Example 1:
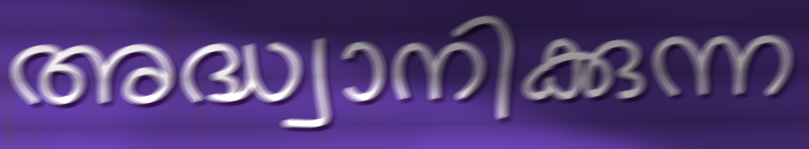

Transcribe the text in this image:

അദ്ധ്വാനിക്കുന്ന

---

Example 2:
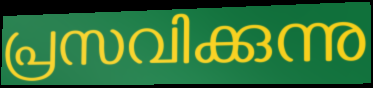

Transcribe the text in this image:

പ്രസവിക്കുന്നു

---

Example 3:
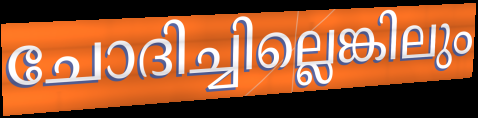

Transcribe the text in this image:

ചോദിച്ചില്ലെങ്കിലും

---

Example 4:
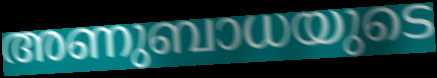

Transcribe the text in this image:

അണുബാധയുടെ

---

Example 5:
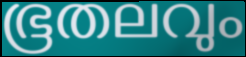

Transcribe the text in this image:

ഭൂതലവും